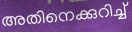
അതിനെക്കുറിച്ച്